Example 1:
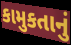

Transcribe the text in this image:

કામુકતાનું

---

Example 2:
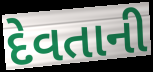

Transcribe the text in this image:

દેવતાની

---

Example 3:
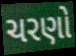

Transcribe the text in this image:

ચરણો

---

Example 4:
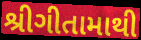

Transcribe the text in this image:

શ્રીગીતામાથી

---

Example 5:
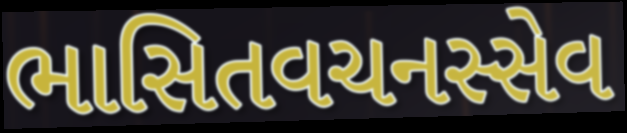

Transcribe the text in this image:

ભાસિતવચનસ્સેવ